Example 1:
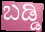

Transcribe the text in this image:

ಬಡ್ಡಿ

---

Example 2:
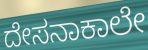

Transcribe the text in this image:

ದೇಸನಾಕಾಲೇ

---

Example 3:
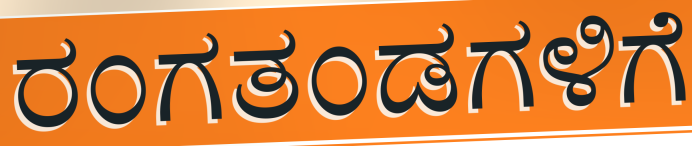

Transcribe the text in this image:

ರಂಗತಂಡಗಳಿಗೆ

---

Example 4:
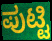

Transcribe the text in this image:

ಪುಟ್ಟಿ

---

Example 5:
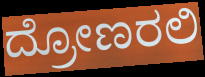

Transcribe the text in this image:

ದ್ರೋಣರಲಿ